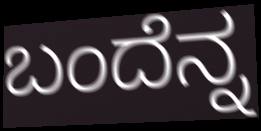
ಬಂದೆನ್ನ